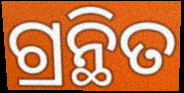
ଗ୍ରନ୍ଥିତ